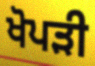
ਖੋਪੜੀ